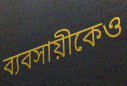
ব্যবসায়ীকেও